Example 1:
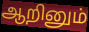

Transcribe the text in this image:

ஆறினும்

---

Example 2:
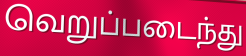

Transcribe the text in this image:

வெறுப்படைந்து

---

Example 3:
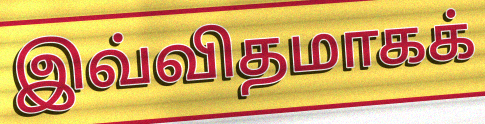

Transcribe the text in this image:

இவ்விதமாகக்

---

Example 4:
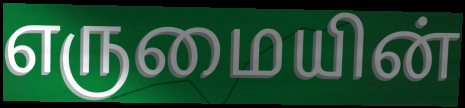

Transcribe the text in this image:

எருமையின்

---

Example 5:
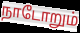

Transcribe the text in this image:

நாடோறும்